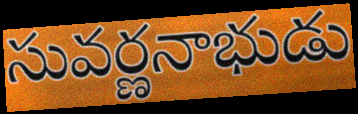
సువర్ణనాభుడు